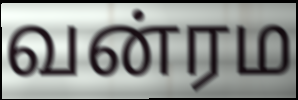
வன்ரம